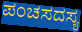
ಪಂಚಸದಸ್ಯ